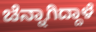
ಚೆನ್ನಾಗಿದ್ದಾಳೆ